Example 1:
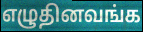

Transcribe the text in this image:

எழுதினவங்க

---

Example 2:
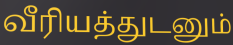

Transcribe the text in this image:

வீரியத்துடனும்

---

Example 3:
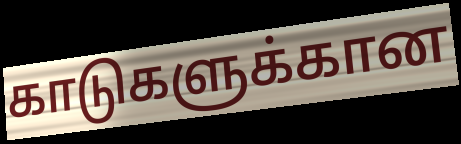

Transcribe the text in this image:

காடுகளுக்கான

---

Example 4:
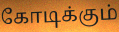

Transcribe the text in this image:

கோடிக்கும்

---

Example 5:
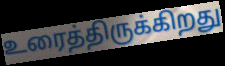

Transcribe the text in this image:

உரைத்திருக்கிறது